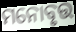
ମନୋବୃତ୍ତ